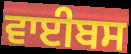
ਵਾਈਬਸ